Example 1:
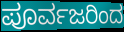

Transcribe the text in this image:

ಪೂರ್ವಜರಿಂದ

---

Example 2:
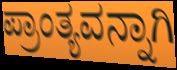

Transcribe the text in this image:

ಪ್ರಾಂತ್ಯವನ್ನಾಗಿ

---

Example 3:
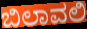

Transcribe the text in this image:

ಬಿಲಾವಲಿ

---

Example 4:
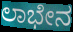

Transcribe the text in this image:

ಲಾಭೇನ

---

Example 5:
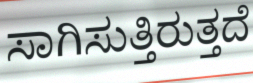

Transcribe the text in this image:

ಸಾಗಿಸುತ್ತಿರುತ್ತದೆ